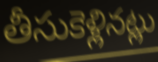
తీసుకెళ్లినట్లు